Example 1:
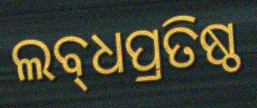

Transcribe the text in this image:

ଲବ୍‌ଧପ୍ରତିଷ୍ଠ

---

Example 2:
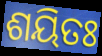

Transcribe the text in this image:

ଶୟିତଃ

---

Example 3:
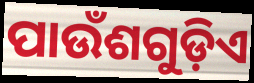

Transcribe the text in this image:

ପାଉଁଶଗୁଡ଼ିଏ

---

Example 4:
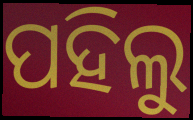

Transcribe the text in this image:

ପହିଲୁ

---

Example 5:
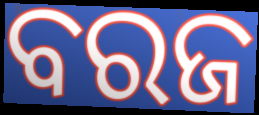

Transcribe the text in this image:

ବରଜ